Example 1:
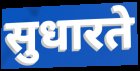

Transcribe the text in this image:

सुधारते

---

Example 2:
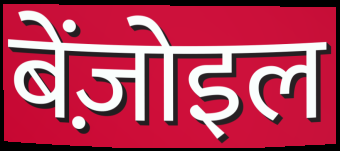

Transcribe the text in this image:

बेंज़ोइल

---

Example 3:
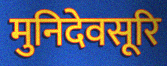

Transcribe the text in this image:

मुनिदेवसूरि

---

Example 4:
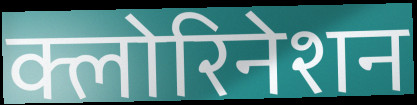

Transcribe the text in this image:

क्लोरिनेशन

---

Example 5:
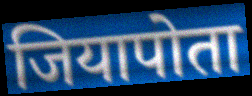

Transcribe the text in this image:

जियापोता